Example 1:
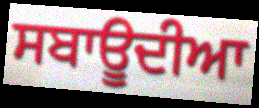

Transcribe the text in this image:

ਸਬਾਊਦੀਆ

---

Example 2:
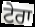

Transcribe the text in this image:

ਟੇਰਾ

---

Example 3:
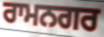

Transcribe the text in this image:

ਰਾਮਨਗਰ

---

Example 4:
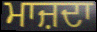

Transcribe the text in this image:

ਮਾਜ਼ਦਾ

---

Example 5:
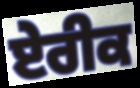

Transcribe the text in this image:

ਏਰੀਕ